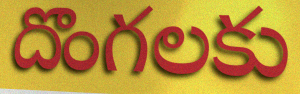
దొంగలకు